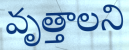
వృత్తాలని